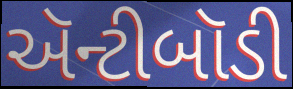
ઍન્ટીબૉડી